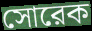
সোরেক